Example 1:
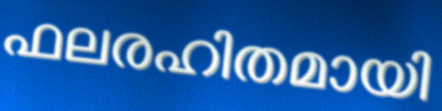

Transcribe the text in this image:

ഫലരഹിതമായി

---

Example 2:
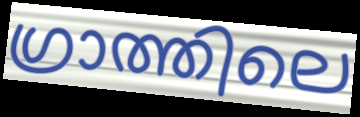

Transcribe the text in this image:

ഗ്രാത്തിലെ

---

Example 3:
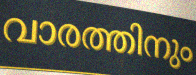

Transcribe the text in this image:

വാരത്തിനും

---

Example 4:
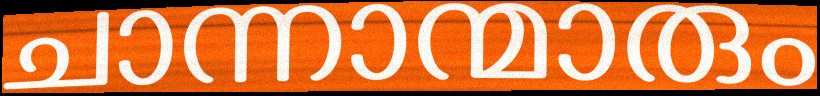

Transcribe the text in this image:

ചാന്നാന്മാരും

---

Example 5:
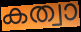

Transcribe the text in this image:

കത്വാ